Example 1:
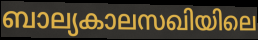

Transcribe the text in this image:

ബാല്യകാലസഖിയിലെ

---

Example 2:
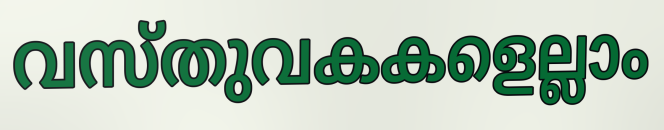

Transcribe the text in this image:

വസ്തുവകകളെല്ലാം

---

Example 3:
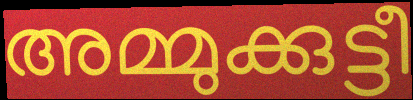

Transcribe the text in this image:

അമ്മുക്കുട്ടീ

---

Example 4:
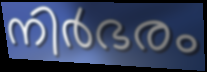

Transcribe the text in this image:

നിർഭരം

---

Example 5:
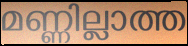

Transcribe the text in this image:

മണ്ണില്ലാത്ത